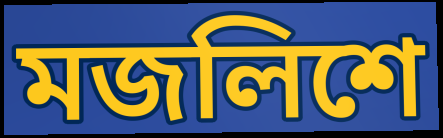
মজলিশে